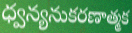
ధ్వన్యనుకరణాత్మక